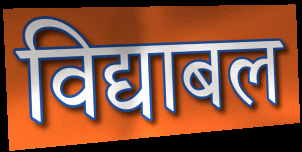
विद्याबल